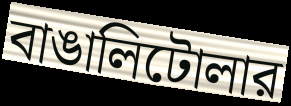
বাঙালিটোলার